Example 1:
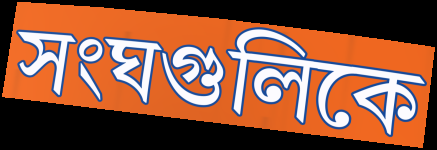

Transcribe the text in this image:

সংঘগুলিকে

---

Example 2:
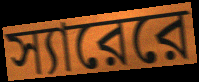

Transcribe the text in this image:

স্যারেরে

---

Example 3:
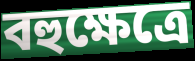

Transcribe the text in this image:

বহুক্ষেত্রে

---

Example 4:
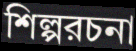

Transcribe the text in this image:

শিল্পরচনা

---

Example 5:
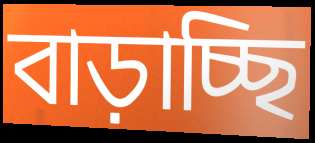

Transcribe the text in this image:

বাড়াচ্ছি